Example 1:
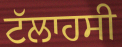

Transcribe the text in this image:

ਟੱਲਾਹਸੀ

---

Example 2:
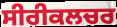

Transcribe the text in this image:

ਸੀਰੀਕਲਚਰ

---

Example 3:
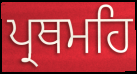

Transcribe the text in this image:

ਪ੍ਰਥਮਹਿ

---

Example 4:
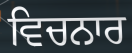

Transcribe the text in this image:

ਵਿਚਨਾਰ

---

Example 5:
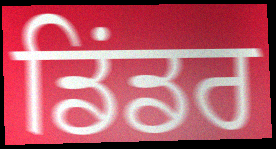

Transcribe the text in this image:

ਡਿਂਡਰ